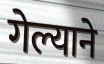
गेल्‍याने